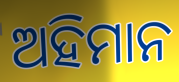
ଅହିମାନ